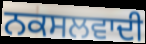
ਨਕਸਲਵਾਦੀ